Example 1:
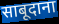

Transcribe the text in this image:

साबूदाना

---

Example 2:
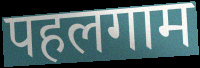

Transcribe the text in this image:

पहलगाम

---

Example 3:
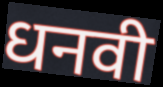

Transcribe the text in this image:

धनवी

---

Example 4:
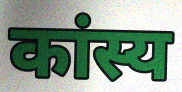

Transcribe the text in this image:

कांस्य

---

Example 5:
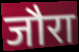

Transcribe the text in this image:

जौरा